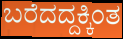
ಬರೆದದ್ದಕ್ಕಿಂತ